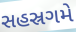
સહસ્રગમે